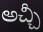
అచ్చీ